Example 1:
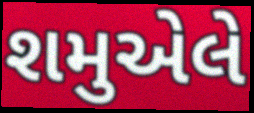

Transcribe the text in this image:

શમુએલે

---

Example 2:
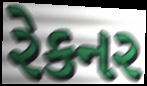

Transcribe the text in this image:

રેકનર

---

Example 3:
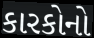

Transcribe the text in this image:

કારકોનો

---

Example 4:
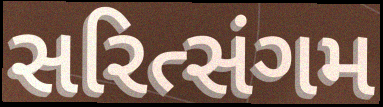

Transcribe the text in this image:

સરિત્સંગમ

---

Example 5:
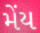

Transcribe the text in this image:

મેંય